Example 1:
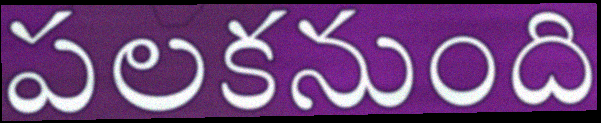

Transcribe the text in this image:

పలకనుంది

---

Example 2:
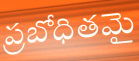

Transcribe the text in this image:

ప్రబోధితమై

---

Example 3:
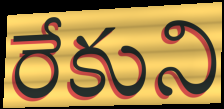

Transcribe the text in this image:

రేకుని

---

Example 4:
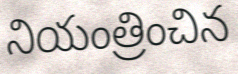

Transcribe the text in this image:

నియంత్రించిన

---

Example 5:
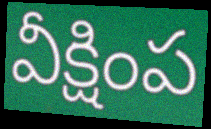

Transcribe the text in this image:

వీక్షింప